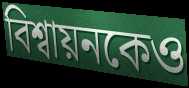
বিশ্বায়নকেও